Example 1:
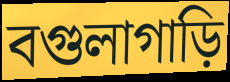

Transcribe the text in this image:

বগুলাগাড়ি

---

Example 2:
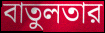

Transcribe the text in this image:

বাতুলতার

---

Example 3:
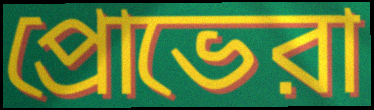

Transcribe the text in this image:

প্রোভেরা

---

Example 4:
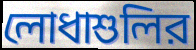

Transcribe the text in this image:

লোধাশুলির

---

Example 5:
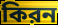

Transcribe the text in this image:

কিরন